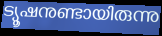
ട്യൂഷനുണ്ടായിരുന്നു